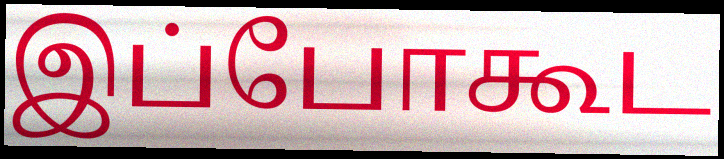
இப்போகூட